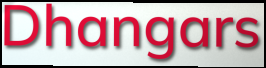
Dhangars